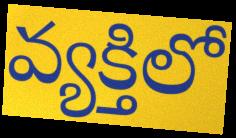
వ్యక్తిలో